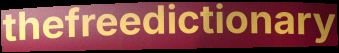
thefreedictionary